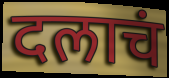
दलाचं